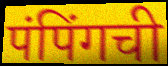
पंपिंगची